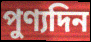
পুণ্যদিন